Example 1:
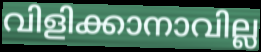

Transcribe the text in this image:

വിളിക്കാനാവില്ല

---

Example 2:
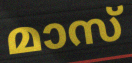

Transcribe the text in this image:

മാസ്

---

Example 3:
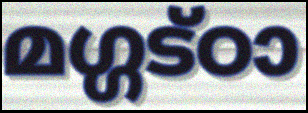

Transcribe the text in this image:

മഗ്ഗട്ഠാ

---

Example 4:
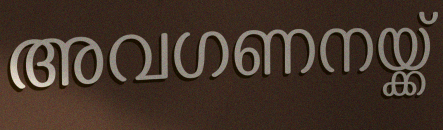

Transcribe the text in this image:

അവഗണനയ്ക്ക്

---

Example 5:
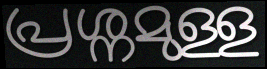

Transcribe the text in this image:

പ്രശ്നമുള്ള